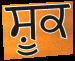
ਸ਼ੂਕ